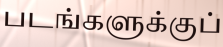
படங்களுக்குப்